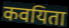
कवयिता